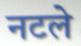
नटले